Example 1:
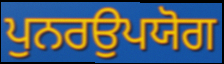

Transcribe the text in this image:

ਪੁਨਰਉਪਯੋਗ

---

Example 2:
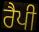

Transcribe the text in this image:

ਰੈਪੀ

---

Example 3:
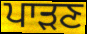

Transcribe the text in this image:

ਪਾੜਣ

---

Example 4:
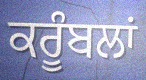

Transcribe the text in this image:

ਕਰੂੰਬਲਾਂ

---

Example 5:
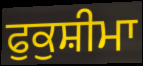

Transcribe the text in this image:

ਫੁਕੁਸ਼ੀਮਾ